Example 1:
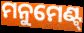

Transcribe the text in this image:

ମନୁମେଣ୍ଟ୍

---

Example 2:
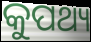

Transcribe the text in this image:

କୁପଥ୍ୟ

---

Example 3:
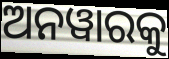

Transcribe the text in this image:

ଅନୱାରକୁ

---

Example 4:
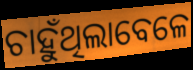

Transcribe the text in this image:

ଚାହୁଁଥିଲାବେଳେ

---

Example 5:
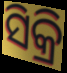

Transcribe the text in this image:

ସିକ୍ରି